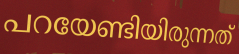
പറയേണ്ടിയിരുന്നത്